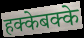
हक्केबक्के